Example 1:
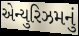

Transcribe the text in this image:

એન્યુરિઝમનું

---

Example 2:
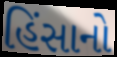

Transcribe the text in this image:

હિંસાનો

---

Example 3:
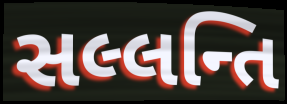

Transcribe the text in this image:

સલ્લન્તિ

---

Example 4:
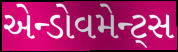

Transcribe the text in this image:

એન્ડોવમેન્ટ્સ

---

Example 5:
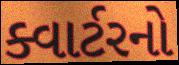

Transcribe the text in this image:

ક્વાર્ટરનો